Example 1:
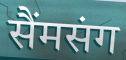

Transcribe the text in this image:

सैंमसंग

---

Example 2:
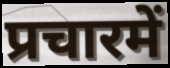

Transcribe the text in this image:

प्रचारमें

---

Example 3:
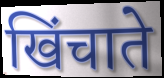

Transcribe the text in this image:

खिंचाते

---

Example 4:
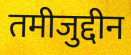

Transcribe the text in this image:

तमीजुद्दीन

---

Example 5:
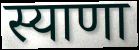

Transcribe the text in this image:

स्याणा